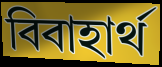
বিবাহার্থ